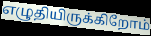
எழுதியிருக்கிறோம்